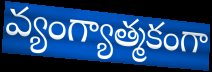
వ్యంగ్యాత్మకంగా